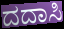
ದದಾಸಿ